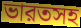
ভারতসহ